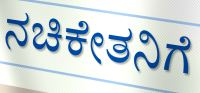
ನಚಿಕೇತನಿಗೆ